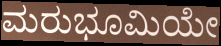
ಮರುಭೂಮಿಯೇ